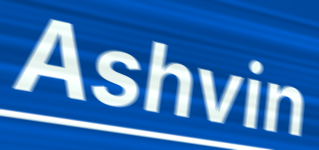
Ashvin